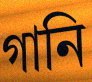
গানি